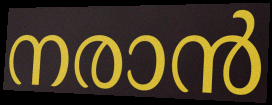
നരാൻ